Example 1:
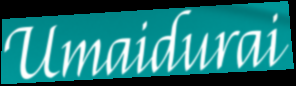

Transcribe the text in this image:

Umaidurai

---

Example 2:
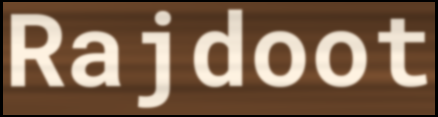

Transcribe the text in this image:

Rajdoot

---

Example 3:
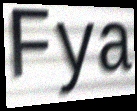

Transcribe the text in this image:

Fya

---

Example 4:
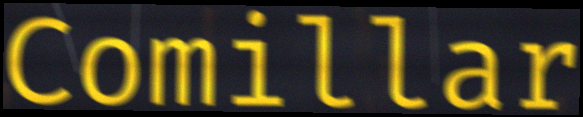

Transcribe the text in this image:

Comillar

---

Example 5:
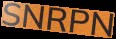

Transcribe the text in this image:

SNRPN